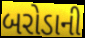
બરોડાની